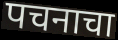
पचनाचा